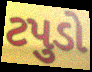
ટપુડો